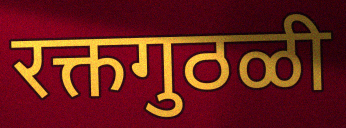
रक्तगुठळी